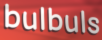
bulbuls